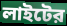
লাইটের